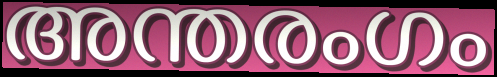
അന്തരംഗം